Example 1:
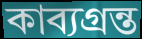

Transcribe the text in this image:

কাব্যগ্রন্ত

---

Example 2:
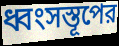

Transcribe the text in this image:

ধ্বংসস্তূপের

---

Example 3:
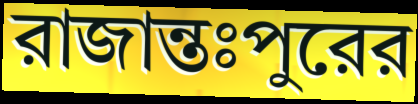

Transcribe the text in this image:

রাজান্তঃপুরের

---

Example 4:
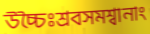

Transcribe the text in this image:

উচ্চৈঃশ্রবসমশ্বানাং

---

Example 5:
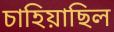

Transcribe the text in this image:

চাহিয়াছিল